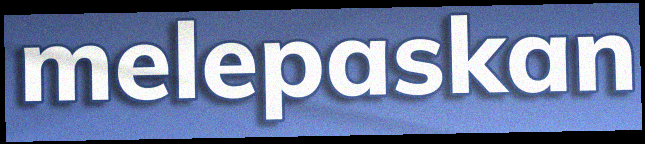
melepaskan